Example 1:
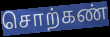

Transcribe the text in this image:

சொற்கண்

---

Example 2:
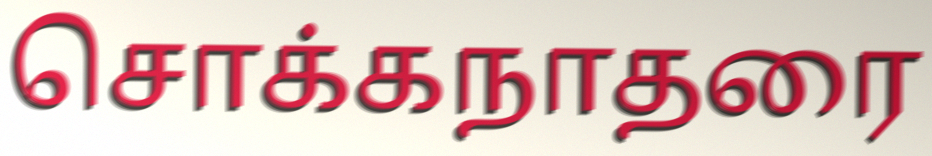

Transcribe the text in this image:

சொக்கநாதரை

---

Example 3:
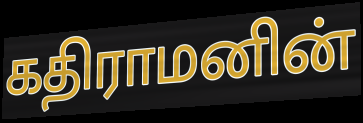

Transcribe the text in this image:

கதிராமனின்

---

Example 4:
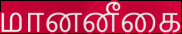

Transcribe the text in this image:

மானனீகை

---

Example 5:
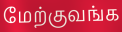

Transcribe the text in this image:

மேற்குவங்க